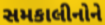
સમકાલીનોને